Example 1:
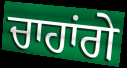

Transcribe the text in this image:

ਚਾਹਾਂਗੇ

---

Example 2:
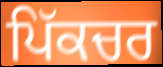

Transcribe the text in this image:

ਪਿੱਕਚਰ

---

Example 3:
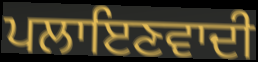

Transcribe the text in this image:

ਪਲਾਇਣਵਾਦੀ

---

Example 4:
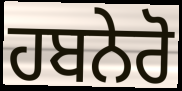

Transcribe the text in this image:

ਹਬਨੇਰੋ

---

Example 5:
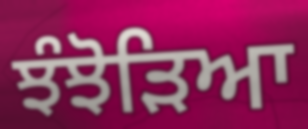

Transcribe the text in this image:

ਝੰਝੋੜਿਆ